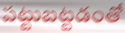
పట్టుబట్టడంతో